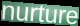
nurture